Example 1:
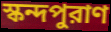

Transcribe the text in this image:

স্কন্দপুরাণ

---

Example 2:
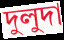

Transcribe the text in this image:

দুলুদা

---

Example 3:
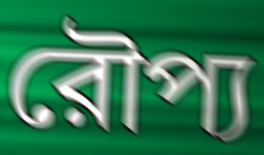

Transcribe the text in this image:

রৌপ্য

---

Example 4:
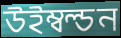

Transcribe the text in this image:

উইম্বল্ডন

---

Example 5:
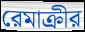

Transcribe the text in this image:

রেমাক্রীর